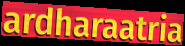
ardharaatria